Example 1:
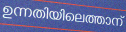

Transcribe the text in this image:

ഉന്നതിയിലെത്താന്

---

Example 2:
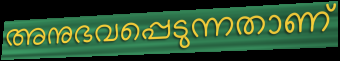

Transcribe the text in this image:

അനുഭവപ്പെടുന്നതാണ്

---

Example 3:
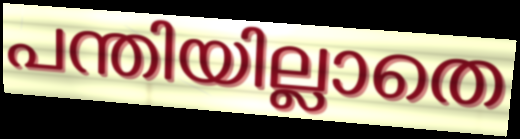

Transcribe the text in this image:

പന്തിയില്ലാതെ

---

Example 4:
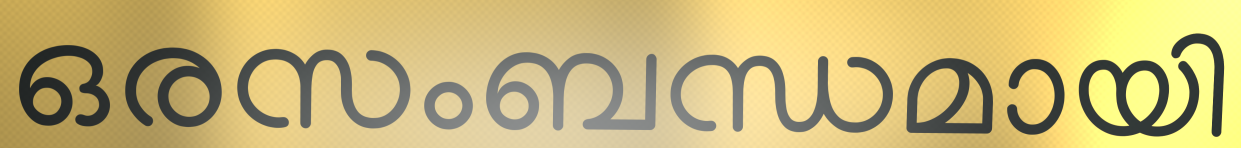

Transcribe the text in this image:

ഒരസംബന്ധമായി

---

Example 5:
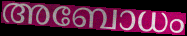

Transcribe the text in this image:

അബോധം